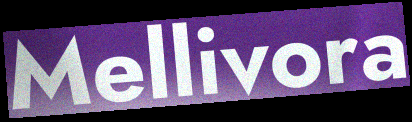
Mellivora